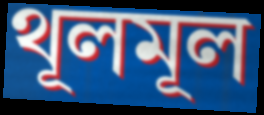
থূলমূল